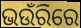
ଭଉଁରିରେ